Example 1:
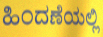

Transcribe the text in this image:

ಹಿಂದಣೆಯಲ್ಲಿ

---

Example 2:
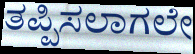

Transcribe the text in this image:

ತಪ್ಪಿಸಲಾಗಲೇ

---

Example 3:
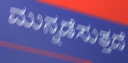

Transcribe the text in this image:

ಮುನ್ನಡೆಸುತ್ತದೆ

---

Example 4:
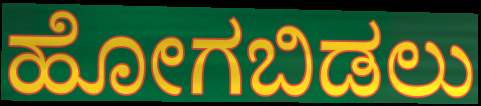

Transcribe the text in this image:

ಹೋಗಬಿಡಲು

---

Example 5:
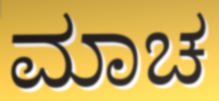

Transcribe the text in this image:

ಮಾಚ